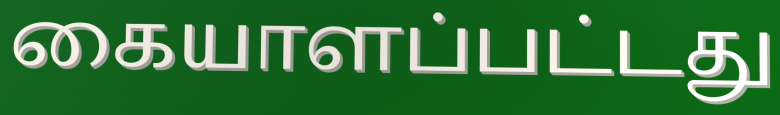
கையாளப்பட்டது